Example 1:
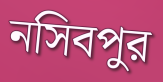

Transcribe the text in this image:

নসিবপুর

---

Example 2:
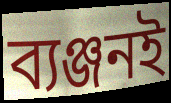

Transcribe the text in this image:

ব্যঞ্জনই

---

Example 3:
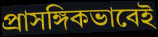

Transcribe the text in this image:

প্রাসঙ্গিকভাবেই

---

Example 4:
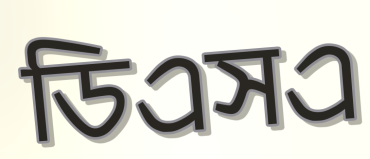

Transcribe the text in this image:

ডিএসএ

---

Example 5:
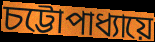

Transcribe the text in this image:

চট্টোপাধ্যায়ে